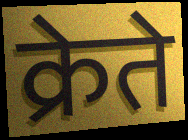
क्रेते